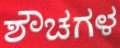
ಶೌಚಗಳ